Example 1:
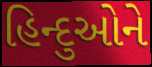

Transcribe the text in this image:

હિન્દુઓને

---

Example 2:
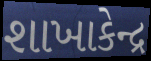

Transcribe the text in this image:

શાખાકેન્દ્ર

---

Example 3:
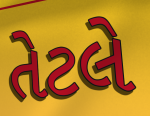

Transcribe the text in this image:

તેટલે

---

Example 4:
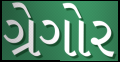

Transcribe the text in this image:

ગ્રેગોર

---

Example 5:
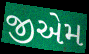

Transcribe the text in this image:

જીએમ